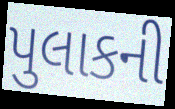
પુલાકની